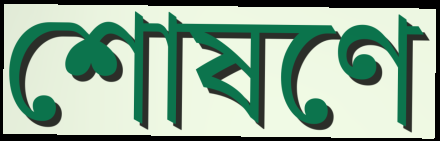
শোষণে